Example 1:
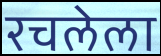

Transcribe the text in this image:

रचलेला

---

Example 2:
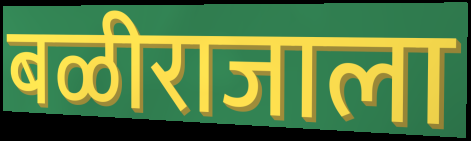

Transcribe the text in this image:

बळीराजाला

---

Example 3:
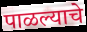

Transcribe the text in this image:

पाळल्याचे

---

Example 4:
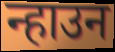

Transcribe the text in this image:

न्हाउन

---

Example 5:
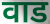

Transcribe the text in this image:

वाड